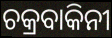
ଚକ୍ରବାକିନୀ